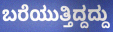
ಬರೆಯುತ್ತಿದ್ದದ್ದು